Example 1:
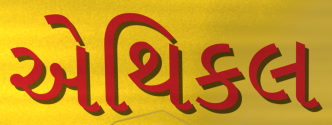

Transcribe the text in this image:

એથિકલ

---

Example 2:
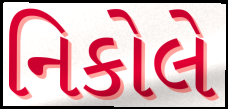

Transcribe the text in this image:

નિકોલે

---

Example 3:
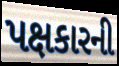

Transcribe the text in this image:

પક્ષકારની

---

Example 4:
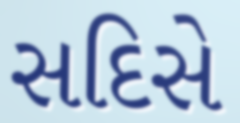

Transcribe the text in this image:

સદિસે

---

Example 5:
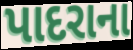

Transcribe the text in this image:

પાદરાના